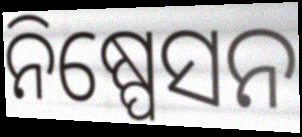
ନିଷ୍ପେସନ